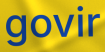
govir